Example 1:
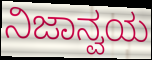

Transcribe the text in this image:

ನಿಜಾನ್ವಯ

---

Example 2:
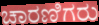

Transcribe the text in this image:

ಚಾರಣಿಗರು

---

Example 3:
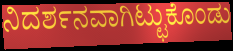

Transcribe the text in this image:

ನಿದರ್ಶನವಾಗಿಟ್ಟುಕೊಂಡು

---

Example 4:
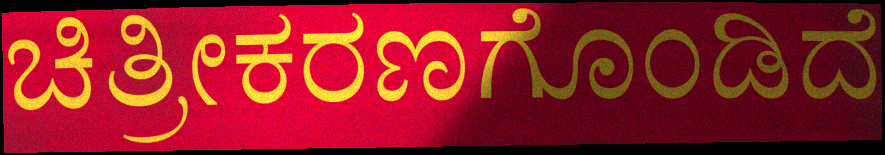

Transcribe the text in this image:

ಚಿತ್ರೀಕರಣಗೊಂಡಿದೆ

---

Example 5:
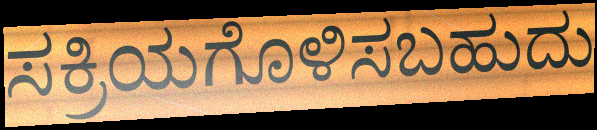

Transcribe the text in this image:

ಸಕ್ರಿಯಗೊಳಿಸಬಹುದು